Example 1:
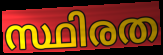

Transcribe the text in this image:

സ്ഥിരത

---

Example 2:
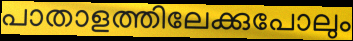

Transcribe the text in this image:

പാതാളത്തിലേക്കുപോലും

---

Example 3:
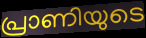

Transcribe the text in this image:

പ്രാണിയുടെ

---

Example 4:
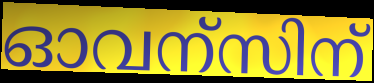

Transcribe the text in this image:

ഓവന്സിന്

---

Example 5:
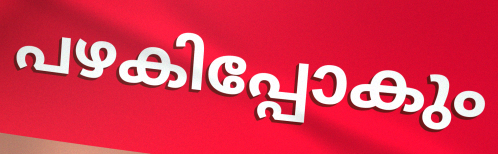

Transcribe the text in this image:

പഴകിപ്പോകും